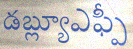
డబ్ల్యూఎఫ్పీ